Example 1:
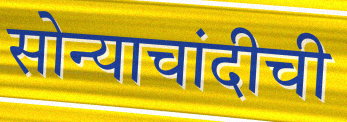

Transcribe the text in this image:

सोन्याचांदीची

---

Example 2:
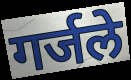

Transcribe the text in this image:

गर्जले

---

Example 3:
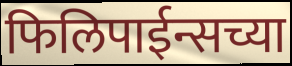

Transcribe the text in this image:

फिलिपाईन्सच्या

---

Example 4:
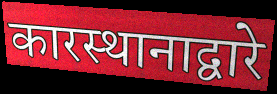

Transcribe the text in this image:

कारस्थानाद्वारे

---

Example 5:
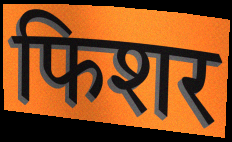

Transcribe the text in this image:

फिशर